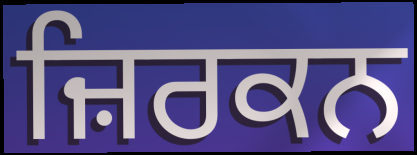
ਜ਼ਿਰਕਨ